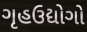
ગૃહઉદ્યોગો